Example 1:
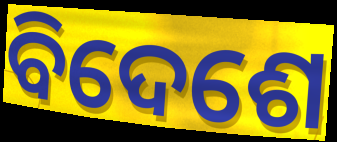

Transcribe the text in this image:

ବିଦେଶେ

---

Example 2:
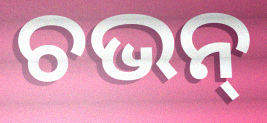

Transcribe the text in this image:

ଚଭନ୍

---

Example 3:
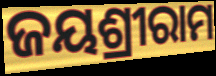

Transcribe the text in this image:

ଜୟଶ୍ରୀରାମ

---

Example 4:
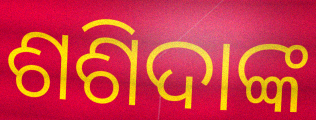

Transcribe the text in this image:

ଶଶିଦାଙ୍କ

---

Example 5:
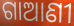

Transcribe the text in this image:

ଗାଆଣୀ